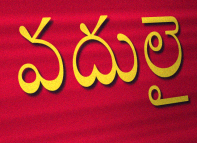
వదులై